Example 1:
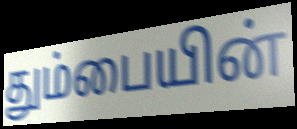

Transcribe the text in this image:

தும்பையின்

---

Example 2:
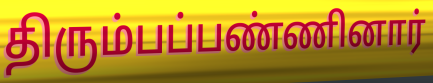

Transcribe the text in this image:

திரும்பப்பண்ணினார்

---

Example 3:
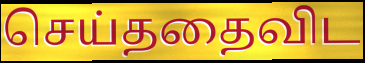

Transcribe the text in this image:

செய்ததைவிட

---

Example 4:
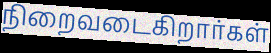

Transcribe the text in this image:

நிறைவடைகிறார்கள்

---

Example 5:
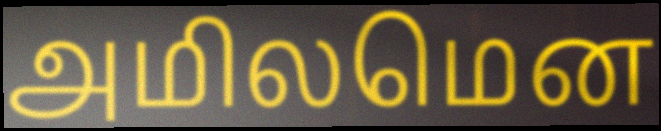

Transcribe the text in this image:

அமிலமென